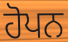
ਹੋਪਨ